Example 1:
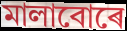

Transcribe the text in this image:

মালাবোৰে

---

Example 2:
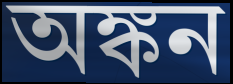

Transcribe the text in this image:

অঙ্কন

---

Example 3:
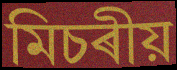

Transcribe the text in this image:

মিচৰীয়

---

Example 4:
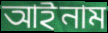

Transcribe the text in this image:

আইনাম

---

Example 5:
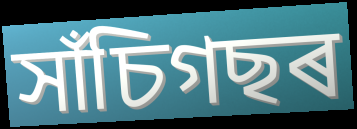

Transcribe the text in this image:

সাঁচিগছৰ